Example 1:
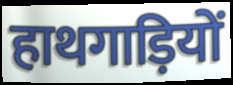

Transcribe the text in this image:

हाथगाड़ियों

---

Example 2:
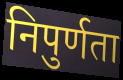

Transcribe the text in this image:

निपुर्णता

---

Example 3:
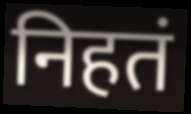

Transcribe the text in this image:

निहतं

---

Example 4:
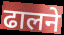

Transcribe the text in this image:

ढालने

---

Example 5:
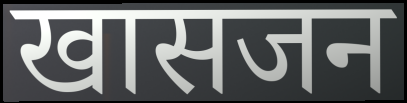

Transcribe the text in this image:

खासजन